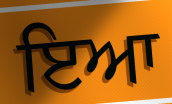
ਇਆ